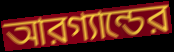
আরগ্যান্ডের